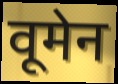
वूमेन